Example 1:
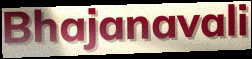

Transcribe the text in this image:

Bhajanavali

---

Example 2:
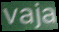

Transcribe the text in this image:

vaja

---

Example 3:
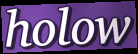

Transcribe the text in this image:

holow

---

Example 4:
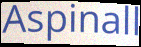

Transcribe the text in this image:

Aspinall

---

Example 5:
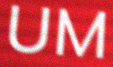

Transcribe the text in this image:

UM